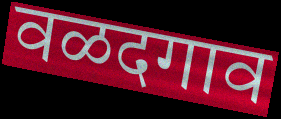
वळदगाव